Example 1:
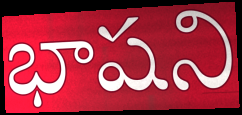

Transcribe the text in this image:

భాషని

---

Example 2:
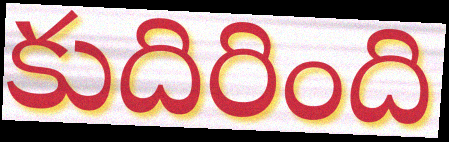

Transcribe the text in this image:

కుదిరింది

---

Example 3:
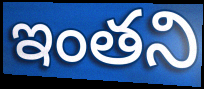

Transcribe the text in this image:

ఇంతని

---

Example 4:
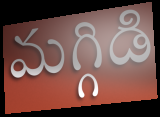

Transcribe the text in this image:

మగ్గిడి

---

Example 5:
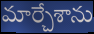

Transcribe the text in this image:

మార్చేశాను